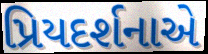
પ્રિયદર્શનાએ